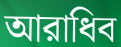
আরাধিব